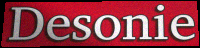
Desonie